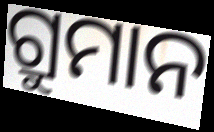
ଗ୍ରୁମାନ